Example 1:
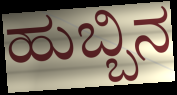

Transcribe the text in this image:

ಹುಬ್ಬಿನ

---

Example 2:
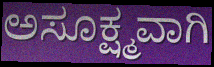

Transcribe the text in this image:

ಅಸೂಕ್ಷ್ಮವಾಗಿ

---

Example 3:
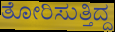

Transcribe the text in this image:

ತೋರಿಸುತ್ತಿದ್ದ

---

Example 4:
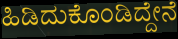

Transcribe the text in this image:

ಹಿಡಿದುಕೊಂಡಿದ್ದೇನೆ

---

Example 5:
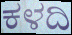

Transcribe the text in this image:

ಕಳದಿ